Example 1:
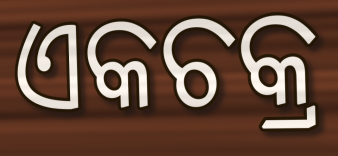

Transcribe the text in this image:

ଏକଚକ୍ର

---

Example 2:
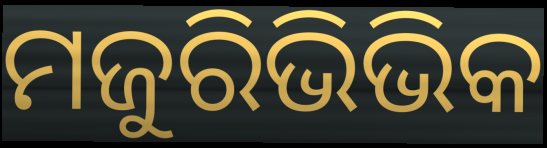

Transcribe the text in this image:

ମଜୁରିଭିଭିକ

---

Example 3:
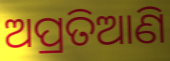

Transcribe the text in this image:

ଅପ୍ରତିଆଣି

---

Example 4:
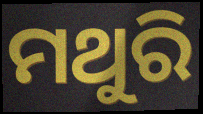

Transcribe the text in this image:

ମଥୁରି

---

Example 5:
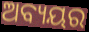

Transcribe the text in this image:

ଅବ୍ୟୟର